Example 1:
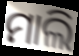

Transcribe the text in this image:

ମାଲି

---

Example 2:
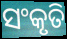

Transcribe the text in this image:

ସଂକୃତି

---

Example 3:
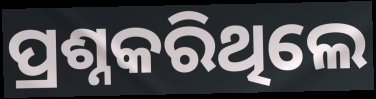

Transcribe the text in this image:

ପ୍ରଶ୍ନକରିଥିଲେ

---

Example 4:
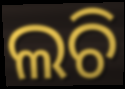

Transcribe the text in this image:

ଲଚି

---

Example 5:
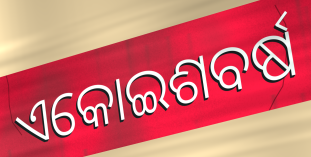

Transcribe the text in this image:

ଏକୋଇଶବର୍ଷ